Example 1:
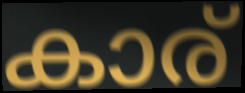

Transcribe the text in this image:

കാര്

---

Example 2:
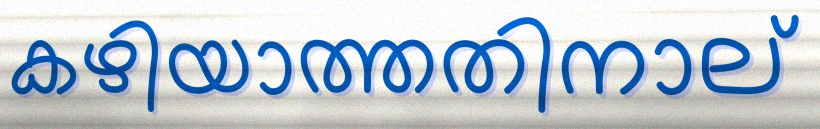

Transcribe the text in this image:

കഴിയാത്തതിനാല്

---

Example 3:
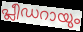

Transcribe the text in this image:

പ്ലീഡറായും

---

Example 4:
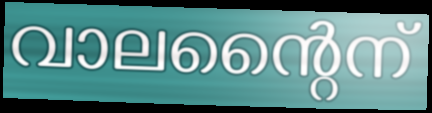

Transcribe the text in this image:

വാലന്റൈന്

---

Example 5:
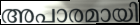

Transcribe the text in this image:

അപാരമായി